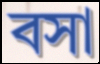
বসা